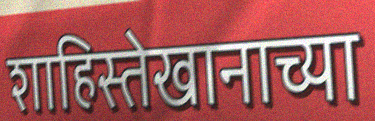
शाहिस्तेखानाच्या